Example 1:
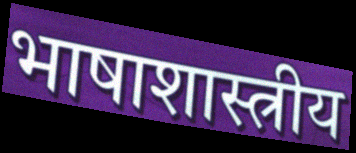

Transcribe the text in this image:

भाषाशास्त्रीय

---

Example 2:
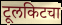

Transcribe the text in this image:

टूलकिटचा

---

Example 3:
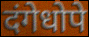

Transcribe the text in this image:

दंगेधोपे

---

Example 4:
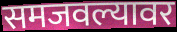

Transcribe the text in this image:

समजवल्यावर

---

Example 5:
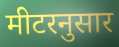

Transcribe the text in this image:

मीटरनुसार